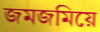
জমজমিয়ে